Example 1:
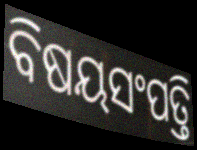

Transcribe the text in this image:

ବିଷୟସଂପତ୍ତି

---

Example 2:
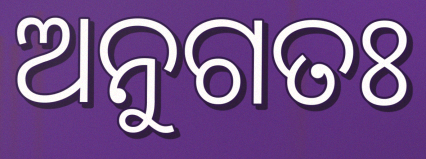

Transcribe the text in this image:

ଅନୁଗତଃ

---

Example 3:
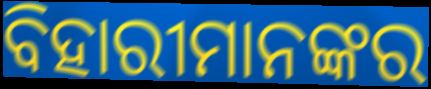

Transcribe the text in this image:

ବିହାରୀମାନଙ୍କର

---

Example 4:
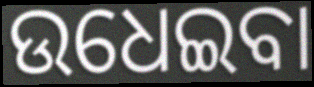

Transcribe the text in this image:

ଉଧେଇବା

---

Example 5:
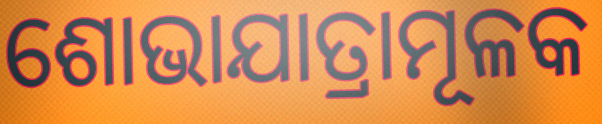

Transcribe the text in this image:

ଶୋଭାଯାତ୍ରାମୂଳକ